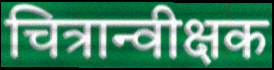
चित्रान्वीक्षक